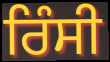
ਰਿੰਸੀ